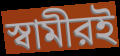
স্বামীরই